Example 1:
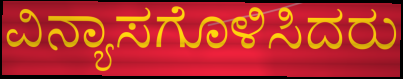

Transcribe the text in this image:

ವಿನ್ಯಾಸಗೊಳಿಸಿದರು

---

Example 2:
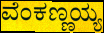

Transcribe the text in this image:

ವೆಂಕಣ್ಣಯ್ಯ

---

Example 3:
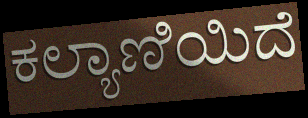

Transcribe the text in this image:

ಕಲ್ಯಾಣಿಯಿದೆ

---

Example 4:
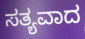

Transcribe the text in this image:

ಸತ್ಯವಾದ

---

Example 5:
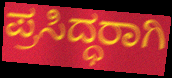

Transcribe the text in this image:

ಪ್ರಸಿದ್ಧರಾಗಿ